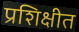
प्रशिक्षीत